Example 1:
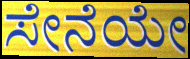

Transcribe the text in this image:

ಸೇನೆಯೇ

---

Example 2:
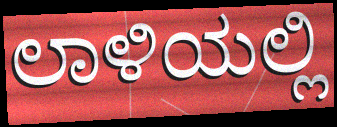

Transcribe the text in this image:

ಲಾಳಿಯಲ್ಲಿ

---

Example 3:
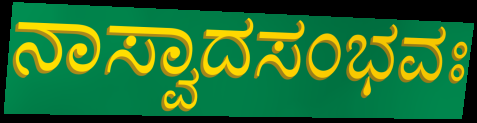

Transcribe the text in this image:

ನಾಸ್ವಾದಸಂಭವಃ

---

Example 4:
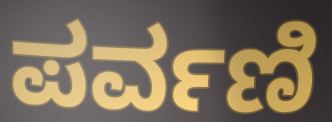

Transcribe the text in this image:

ಪರ್ವಣಿ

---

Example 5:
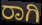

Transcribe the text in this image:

ರಾಗಿ